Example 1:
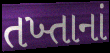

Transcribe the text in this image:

તખ્તાનાં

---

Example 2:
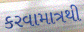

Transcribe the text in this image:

કરવામાત્રથી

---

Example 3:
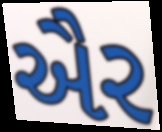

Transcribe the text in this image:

ઐર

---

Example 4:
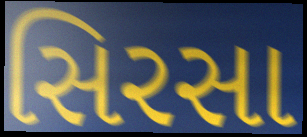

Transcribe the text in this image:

સિરસા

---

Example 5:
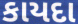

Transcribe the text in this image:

કાયદા